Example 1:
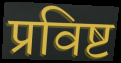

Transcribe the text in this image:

प्रविष्ट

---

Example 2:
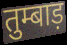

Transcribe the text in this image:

तुम्बाड़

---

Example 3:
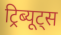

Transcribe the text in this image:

ट्रिब्यूट्स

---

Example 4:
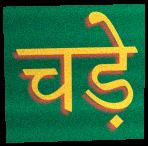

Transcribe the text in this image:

चड़े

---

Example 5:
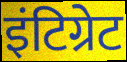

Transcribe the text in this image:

इंटिग्रेट